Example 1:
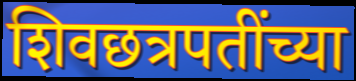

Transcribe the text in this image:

शिवछत्रपतींच्या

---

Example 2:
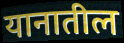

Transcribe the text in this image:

यानातील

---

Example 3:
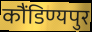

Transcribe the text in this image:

कौंडिण्यपुर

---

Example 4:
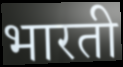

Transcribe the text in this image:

भारती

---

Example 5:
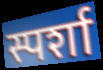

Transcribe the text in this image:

स्पर्शा